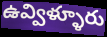
ఉవ్విళ్ళూరు